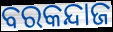
ବରକନ୍ଦାଜ